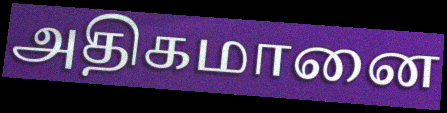
அதிகமானை